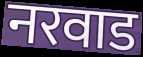
नरवाड